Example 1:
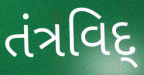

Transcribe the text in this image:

તંત્રવિદ્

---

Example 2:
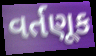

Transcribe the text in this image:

વર્તણૂક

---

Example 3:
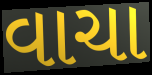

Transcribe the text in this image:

વાચા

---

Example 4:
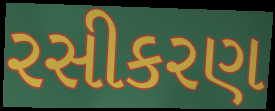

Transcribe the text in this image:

રસીકરણ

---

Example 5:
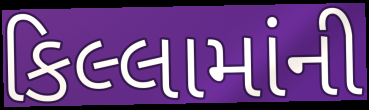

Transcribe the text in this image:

કિલ્લામાંની